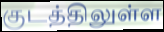
குடத்திலுள்ள